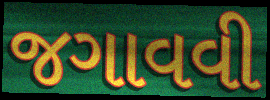
જગાવવી